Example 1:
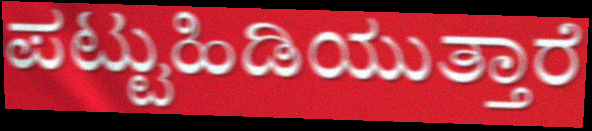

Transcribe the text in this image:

ಪಟ್ಟುಹಿಡಿಯುತ್ತಾರೆ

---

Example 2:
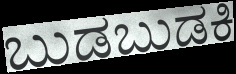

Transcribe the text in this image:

ಬುಡಬುಡಕಿ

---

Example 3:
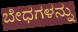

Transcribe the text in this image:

ಬೇಧಗಳನ್ನು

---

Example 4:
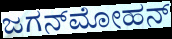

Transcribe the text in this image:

ಜಗನ್‌ಮೋಹನ್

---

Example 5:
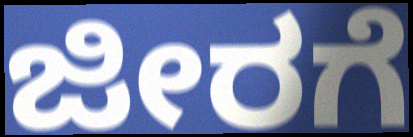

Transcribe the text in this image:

ಜೀರಗೆ